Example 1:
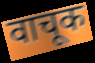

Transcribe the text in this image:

वाचूक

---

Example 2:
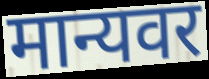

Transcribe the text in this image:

मान्यवर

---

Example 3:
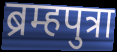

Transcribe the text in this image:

ब्रम्हपुत्रा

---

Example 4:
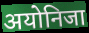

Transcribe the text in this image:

अयोनिजा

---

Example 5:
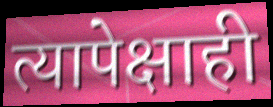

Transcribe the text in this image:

त्यापेक्षाही